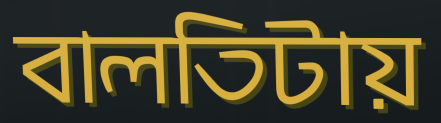
বালতিটায়